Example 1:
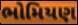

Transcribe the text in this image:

ભોમિયણ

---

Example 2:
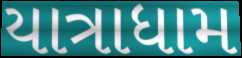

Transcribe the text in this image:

યાત્રાધામ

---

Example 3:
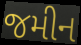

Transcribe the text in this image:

જમીન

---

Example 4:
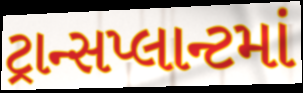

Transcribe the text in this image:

ટ્રાન્સપ્લાન્ટમાં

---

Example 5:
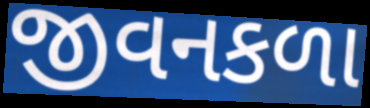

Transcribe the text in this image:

જીવનકળા